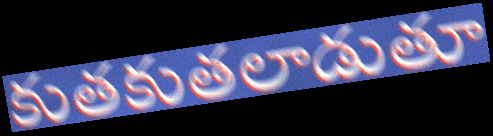
కుతకుతలాడుతూ